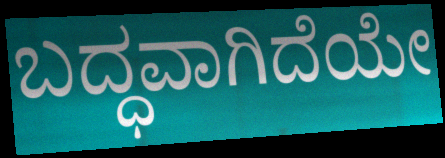
ಬದ್ಧವಾಗಿದೆಯೇ